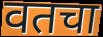
वतचा